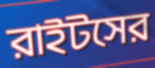
রাইটসের